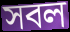
সবল